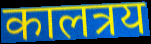
कालत्रय